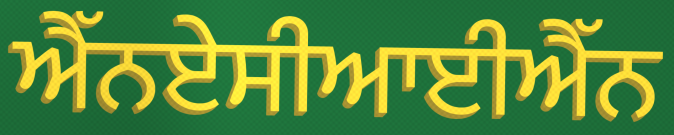
ਐੱਨਏਸੀਆਈਐੱਨ